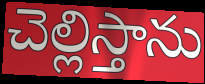
చెల్లిస్తాను